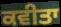
ਕਵੀਤਾ